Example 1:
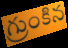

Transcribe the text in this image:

గ్రుంకిన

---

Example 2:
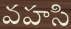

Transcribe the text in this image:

వహసి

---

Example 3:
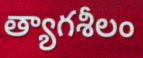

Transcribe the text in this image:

త్యాగశీలం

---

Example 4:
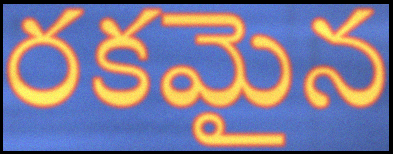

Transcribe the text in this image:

రకమైన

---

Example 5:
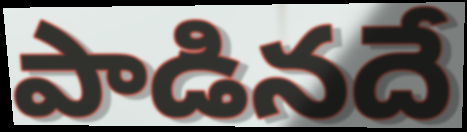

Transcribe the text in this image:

పాడినదే